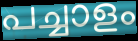
പച്ചാളം